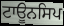
ਟਾਊਨਸਿਪ